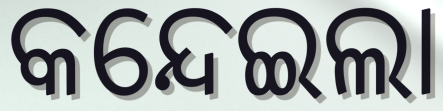
କନ୍ଦେଇଲା